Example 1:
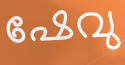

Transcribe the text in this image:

ഷേവു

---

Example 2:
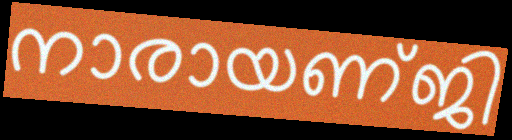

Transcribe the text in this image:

നാരായണ്ജി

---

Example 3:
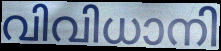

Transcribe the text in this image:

വിവിധാനി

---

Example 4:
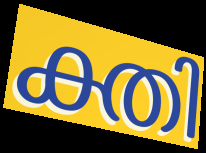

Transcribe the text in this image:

ക്തി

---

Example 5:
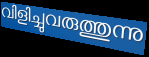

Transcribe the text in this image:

വിളിച്ചുവരുത്തുന്നു